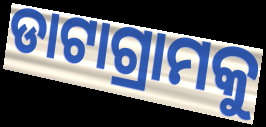
ଡାଟାଗ୍ରାମକୁ